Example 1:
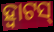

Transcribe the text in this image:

ହ୍ୱାଟସ୍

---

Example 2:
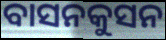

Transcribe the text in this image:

ବାସନକୁସନ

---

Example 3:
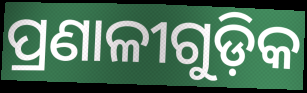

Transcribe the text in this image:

ପ୍ରଣାଳୀଗୁଡ଼ିକ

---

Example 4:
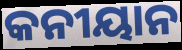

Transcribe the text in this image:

କନୀୟାନ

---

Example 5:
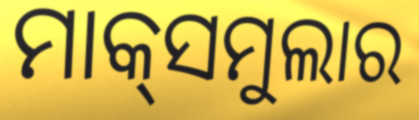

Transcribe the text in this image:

ମାକ୍‌ସମୁଲାର